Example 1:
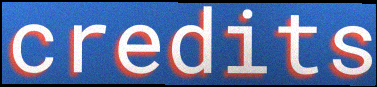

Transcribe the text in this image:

credits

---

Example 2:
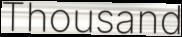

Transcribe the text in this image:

Thousand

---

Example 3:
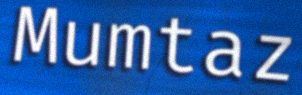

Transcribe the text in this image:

Mumtaz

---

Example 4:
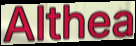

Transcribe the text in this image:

Althea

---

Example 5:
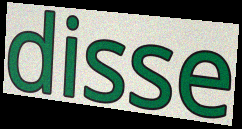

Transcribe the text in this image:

disse